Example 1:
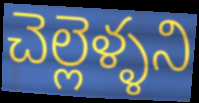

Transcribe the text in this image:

చెల్లెళ్ళని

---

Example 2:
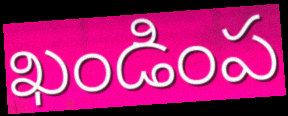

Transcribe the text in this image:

ఖండింప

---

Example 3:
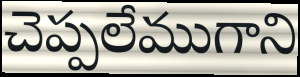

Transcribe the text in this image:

చెప్పలేముగాని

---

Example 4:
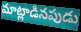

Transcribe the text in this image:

మాట్లాడినపుడు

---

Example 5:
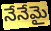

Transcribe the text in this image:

నేనేమై